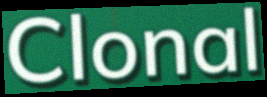
Clonal